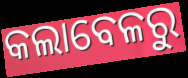
କଲାବେଳରୁ